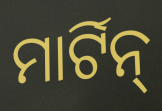
ମାର୍ଟିନ୍